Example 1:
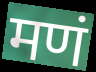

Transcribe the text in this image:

मणं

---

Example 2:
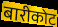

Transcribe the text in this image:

बारीकोट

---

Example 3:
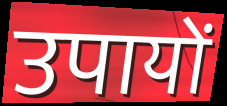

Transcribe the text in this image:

उपायों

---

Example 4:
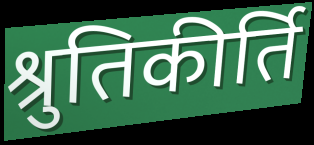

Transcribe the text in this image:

श्रुतिकीर्ति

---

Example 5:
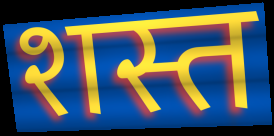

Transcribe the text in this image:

शस्त